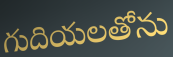
గుదియలతోను